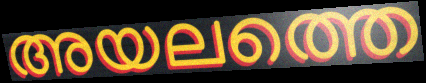
അയലത്തെ